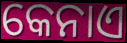
କେନାଏ